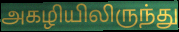
அகழியிலிருந்து